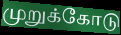
முறுக்கோடு